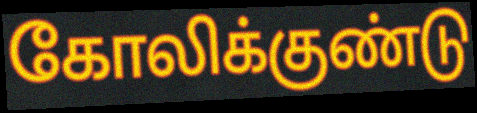
கோலிக்குண்டு